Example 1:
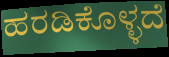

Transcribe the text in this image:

ಹರಡಿಕೊಳ್ಳದೆ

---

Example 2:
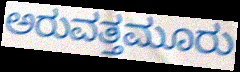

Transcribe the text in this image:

ಅರುವತ್ತಮೂರು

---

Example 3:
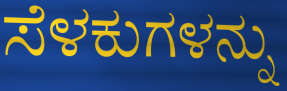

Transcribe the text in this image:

ಸೆಳಕುಗಳನ್ನು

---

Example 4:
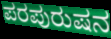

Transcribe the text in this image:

ಪರಪುರುಷನ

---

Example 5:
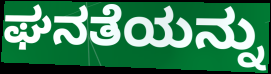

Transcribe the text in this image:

ಘನತೆಯನ್ನು